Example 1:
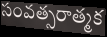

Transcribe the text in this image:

సంవత్సరాత్మక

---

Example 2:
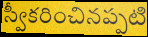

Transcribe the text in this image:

స్వీకరించినప్పటి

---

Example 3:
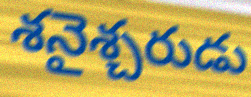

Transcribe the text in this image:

శనైశ్చరుడు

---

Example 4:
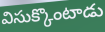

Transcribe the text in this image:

విసుక్కొంటాడు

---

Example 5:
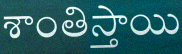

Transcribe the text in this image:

శాంతిస్తాయి